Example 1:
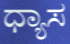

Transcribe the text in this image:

ಧ್ಯಾಸ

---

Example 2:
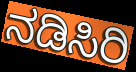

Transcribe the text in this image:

ನಡಿಸಿರಿ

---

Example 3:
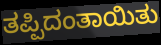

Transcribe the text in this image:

ತಪ್ಪಿದಂತಾಯಿತು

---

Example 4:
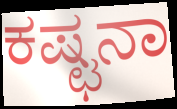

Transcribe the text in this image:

ಕಷ್ಟನಾ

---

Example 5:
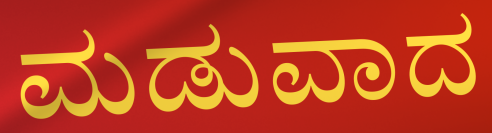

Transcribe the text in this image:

ಮಡುವಾದ